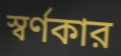
স্বর্ণকার